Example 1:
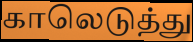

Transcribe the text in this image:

காலெடுத்து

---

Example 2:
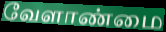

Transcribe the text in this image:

வேளாண்மை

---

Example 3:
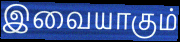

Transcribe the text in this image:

இவையாகும்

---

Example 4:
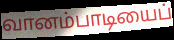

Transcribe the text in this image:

வானம்பாடியைப்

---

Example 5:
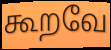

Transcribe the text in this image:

கூறவே